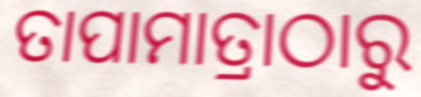
ତାପାମାତ୍ରାଠାରୁ